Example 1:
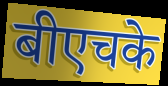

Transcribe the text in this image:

बीएचके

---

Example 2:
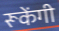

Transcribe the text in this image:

रूकेंगी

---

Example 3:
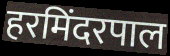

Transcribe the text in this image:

हरमिंदरपाल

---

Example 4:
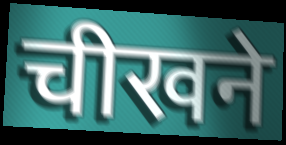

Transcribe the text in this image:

चीखने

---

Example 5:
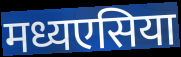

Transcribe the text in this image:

मध्यएसिया